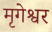
मृगेश्वर